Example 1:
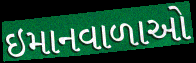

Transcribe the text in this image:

ઇમાનવાળાઓ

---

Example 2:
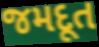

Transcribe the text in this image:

જમદૂત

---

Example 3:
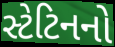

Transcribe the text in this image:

સ્ટેટિનનો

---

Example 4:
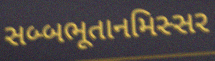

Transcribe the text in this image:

સબ્બભૂતાનમિસ્સર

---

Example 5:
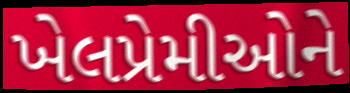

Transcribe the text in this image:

ખેલપ્રેમીઓને